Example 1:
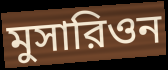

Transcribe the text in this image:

মুসারিওন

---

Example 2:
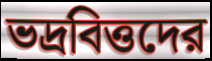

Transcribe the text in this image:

ভদ্রবিত্তদের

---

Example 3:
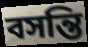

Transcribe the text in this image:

বসন্তি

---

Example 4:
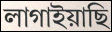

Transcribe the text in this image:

লাগাইয়াছি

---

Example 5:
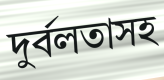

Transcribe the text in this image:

দুর্বলতাসহ